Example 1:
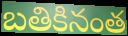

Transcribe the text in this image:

బతికినంత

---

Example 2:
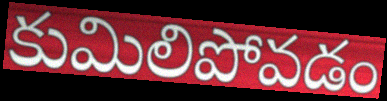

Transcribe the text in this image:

కుమిలిపోవడం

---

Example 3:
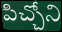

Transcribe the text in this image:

పిచ్చోని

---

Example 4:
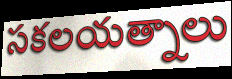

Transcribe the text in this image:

సకలయత్నాలు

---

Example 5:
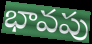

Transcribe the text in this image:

భావపు